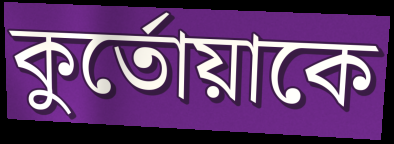
কুর্তোয়াকে